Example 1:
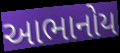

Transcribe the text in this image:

આભાનોય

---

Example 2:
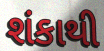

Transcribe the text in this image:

શંકાથી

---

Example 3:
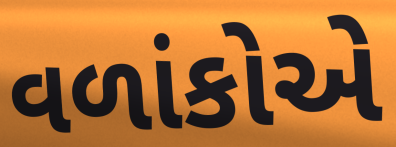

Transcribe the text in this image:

વળાંકોએ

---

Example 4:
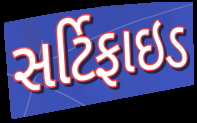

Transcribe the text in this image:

સર્ટિફાઇડ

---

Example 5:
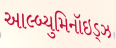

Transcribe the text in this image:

આલ્બ્યુમિનૉઇડ્ઝ